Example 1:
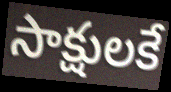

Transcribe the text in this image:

సాక్షులకే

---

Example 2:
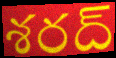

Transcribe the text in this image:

శరద్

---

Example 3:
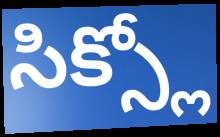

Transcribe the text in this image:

సిక్స్లో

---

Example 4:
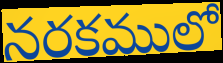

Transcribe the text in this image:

నరకములో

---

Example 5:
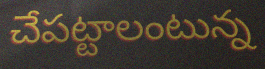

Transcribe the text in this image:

చేపట్టాలంటున్న